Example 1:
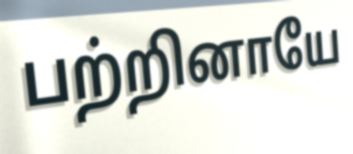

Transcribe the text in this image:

பற்றினாயே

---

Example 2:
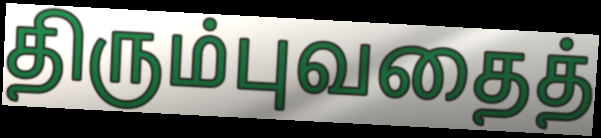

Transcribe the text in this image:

திரும்புவதைத்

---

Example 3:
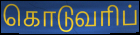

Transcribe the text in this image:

கொடுவரிப்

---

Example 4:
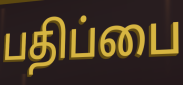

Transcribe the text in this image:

பதிப்பை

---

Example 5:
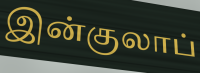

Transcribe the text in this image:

இன்குலாப்